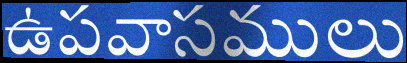
ఉపవాసములు